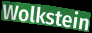
Wolkstein